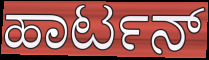
ಹಾರ್ಟನ್